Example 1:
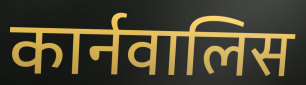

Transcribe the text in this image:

कार्नवालिस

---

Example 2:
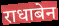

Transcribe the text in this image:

राधाबेन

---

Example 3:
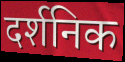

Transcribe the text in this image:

दर्शनिक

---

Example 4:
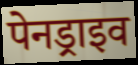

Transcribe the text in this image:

पेनड्राइव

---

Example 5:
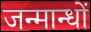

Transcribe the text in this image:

जन्मान्धों